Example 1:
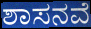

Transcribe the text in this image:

ಶಾಸನವೆ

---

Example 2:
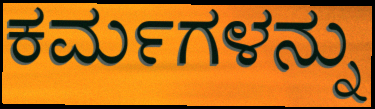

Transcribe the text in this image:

ಕರ್ಮಗಳನ್ನು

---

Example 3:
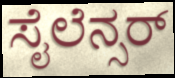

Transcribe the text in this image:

ಸೈಲೆನ್ಸರ್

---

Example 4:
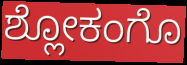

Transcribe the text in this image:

ಶ್ಲೋಕಂಗೊ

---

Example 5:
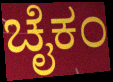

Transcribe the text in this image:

ಚೈಕಂ